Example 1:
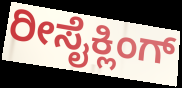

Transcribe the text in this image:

ರೀಸೈಕ್ಲಿಂಗ್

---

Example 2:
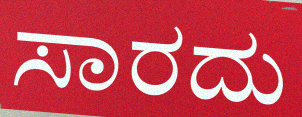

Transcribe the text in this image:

ಸಾರದು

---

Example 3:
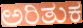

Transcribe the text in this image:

ಅರಿತುಕ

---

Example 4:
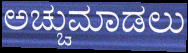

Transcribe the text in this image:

ಅಚ್ಚುಮಾಡಲು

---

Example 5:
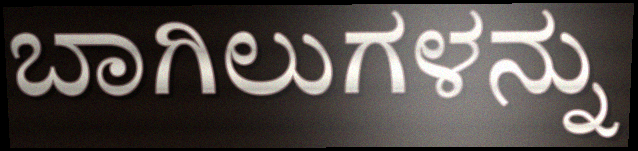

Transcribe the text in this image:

ಬಾಗಿಲುಗಳನ್ನು